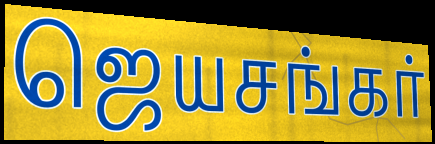
ஜெயசங்கர்